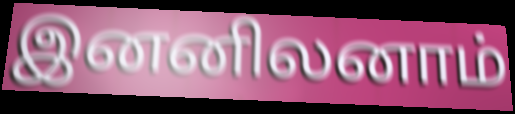
இனனிலனாம்